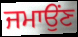
ਜਮਾਉਂਣ